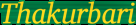
Thakurbari